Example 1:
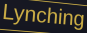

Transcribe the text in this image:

Lynching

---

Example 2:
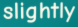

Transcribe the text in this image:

slightly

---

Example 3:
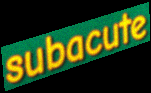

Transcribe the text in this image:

subacute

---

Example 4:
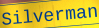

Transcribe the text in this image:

Silverman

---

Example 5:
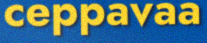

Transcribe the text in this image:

ceppavaa